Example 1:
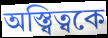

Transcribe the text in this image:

অস্ত্বিত্বকে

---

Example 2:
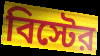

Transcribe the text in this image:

বিস্টের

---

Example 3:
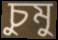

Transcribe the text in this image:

চুমু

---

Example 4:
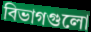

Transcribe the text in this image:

বিভাগগুলো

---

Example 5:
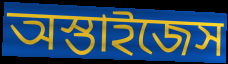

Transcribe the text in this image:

অস্তাইজেস